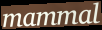
mammal